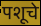
पशूचे